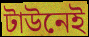
টাউনেই